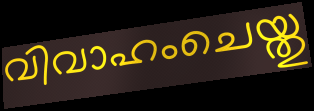
വിവാഹംചെയ്തു